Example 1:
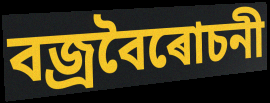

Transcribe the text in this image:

বজ্ৰবৈৰোচনী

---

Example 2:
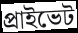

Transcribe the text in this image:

প্ৰাইভেট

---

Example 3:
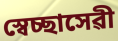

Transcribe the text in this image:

স্বেচ্ছাসেৱী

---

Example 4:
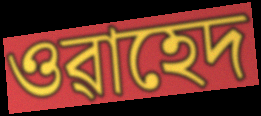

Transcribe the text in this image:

ওৱাহেদ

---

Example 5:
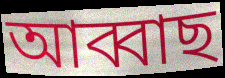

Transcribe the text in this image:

আব্বাছ